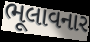
ભૂલાવનાર